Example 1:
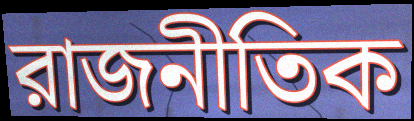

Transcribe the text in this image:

রাজনীতিক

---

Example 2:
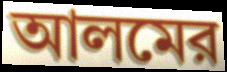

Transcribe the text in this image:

আলমের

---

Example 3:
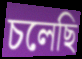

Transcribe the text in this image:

চলেছি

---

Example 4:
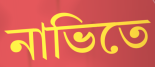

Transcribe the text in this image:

নাভিতে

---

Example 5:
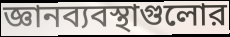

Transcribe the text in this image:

জ্ঞানব্যবস্থাগুলোর